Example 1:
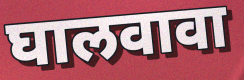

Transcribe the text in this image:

घालवावा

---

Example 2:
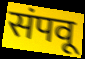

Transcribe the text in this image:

संपवू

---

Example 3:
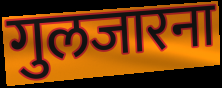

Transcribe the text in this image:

गुलजारना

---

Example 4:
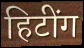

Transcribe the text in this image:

हिटींग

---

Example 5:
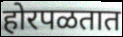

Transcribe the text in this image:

होरपळतात